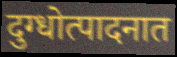
दुग्धोत्पादनात